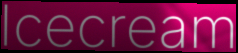
Icecream